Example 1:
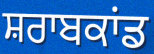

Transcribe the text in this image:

ਸ਼ਰਾਬਕਾਂਡ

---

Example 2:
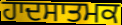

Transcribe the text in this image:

ਹਾਦਸਾਤਮਕ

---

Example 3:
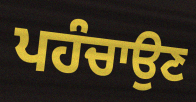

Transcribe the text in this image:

ਪਹੰਚਾਉਣ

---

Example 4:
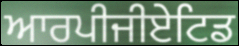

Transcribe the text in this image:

ਆਰਪੀਜੀਏਟਿਡ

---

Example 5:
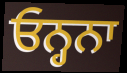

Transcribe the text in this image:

ਓਨ੍ਹਨਾ